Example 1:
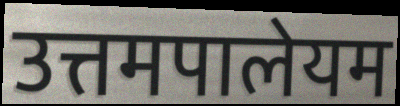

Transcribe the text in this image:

उत्तमपालेयम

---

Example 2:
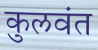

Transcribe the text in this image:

कुलवंत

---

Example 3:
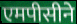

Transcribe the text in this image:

एमपीसीने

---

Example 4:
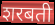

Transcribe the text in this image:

शरबती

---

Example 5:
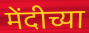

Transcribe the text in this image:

मेंदीच्या